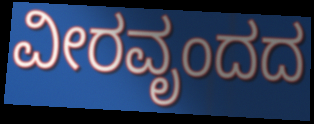
ವೀರವೃಂದದ